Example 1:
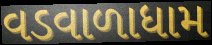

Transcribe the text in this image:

વડવાળાધામ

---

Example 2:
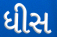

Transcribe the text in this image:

ધીસ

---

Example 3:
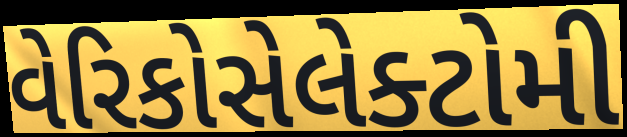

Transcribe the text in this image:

વેરિકોસેલેક્ટોમી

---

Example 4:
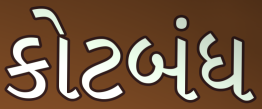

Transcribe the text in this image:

કોટબંધ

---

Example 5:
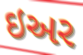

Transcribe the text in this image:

ઇઅર